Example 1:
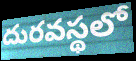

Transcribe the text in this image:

దురవస్థలో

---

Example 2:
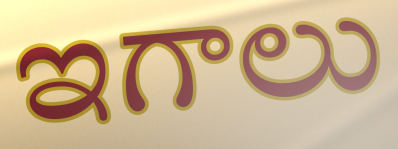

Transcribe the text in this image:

ఇగాలు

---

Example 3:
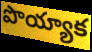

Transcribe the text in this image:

పొయ్యాక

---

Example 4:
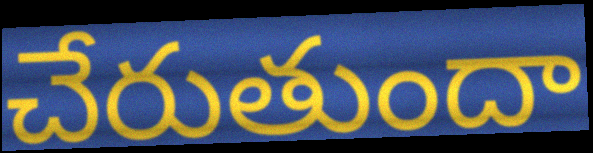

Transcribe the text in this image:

చేరుతుందా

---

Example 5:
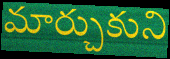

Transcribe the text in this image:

మార్చుకుని